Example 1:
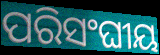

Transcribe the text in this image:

ପରିସଂଘୀୟ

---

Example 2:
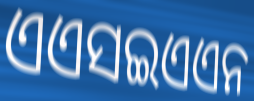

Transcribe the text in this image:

ଏଏସଇଏଏନ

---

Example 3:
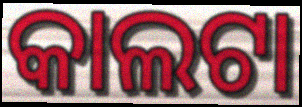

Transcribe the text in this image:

କାଲଟା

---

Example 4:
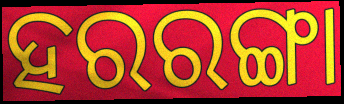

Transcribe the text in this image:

ହରରଙ୍ଗା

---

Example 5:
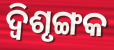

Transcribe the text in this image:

ଦ୍ଵିଶୃଙ୍ଗକ